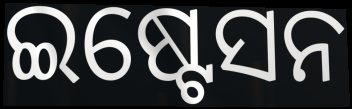
ଇଷ୍ଟେସନ